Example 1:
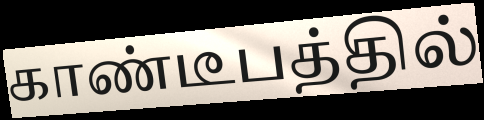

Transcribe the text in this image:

காண்டீபத்தில்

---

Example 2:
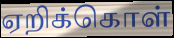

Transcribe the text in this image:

ஏறிக்கொள்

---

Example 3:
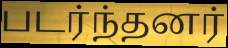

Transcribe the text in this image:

படர்ந்தனர்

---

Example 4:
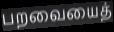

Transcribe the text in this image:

பறவையைத்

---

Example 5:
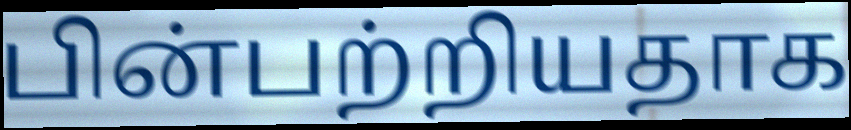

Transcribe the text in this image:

பின்பற்றியதாக